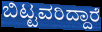
ಬಿಟ್ಟವರಿದ್ದಾರೆ